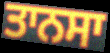
ਤਾਨਸਾ